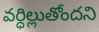
వర్ధిల్లుతోందని